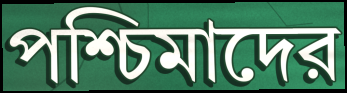
পশ্চিমাদের